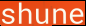
shune